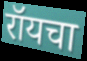
रॉयचा